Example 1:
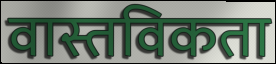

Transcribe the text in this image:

वास्तविकता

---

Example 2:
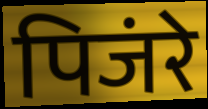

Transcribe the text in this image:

पिजंरे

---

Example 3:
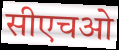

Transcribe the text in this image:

सीएचओ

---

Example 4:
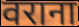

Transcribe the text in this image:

वराना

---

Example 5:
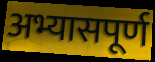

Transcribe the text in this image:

अभ्यासपूर्ण